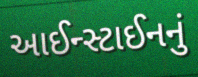
આઈન્સ્ટાઈનનું